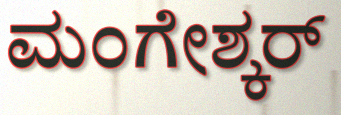
ಮಂಗೇಶ್ಕರ್